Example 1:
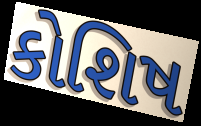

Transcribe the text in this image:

કોશિષ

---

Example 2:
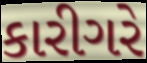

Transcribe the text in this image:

કારીગરે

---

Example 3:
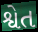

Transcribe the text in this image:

શ્વેત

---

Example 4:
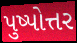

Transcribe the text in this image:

પુષ્પોત્તર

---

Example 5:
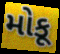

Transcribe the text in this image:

મોકૂ